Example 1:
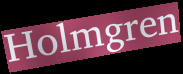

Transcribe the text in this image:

Holmgren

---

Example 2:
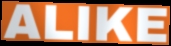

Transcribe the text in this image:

ALIKE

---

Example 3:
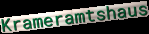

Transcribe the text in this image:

Krameramtshaus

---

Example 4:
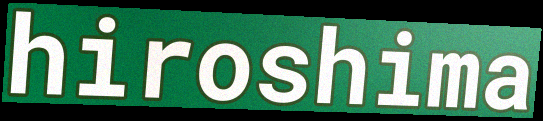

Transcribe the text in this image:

hiroshima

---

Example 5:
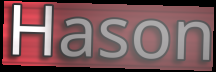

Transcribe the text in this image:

Hason